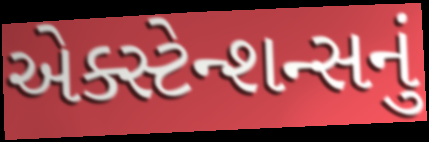
એક્સ્ટેન્શન્સનું